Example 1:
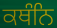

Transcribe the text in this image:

ਕਥੰਨਿ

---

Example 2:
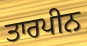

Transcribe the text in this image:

ਤਾਰਪੀਨ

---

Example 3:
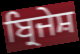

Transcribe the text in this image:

ਬ੍ਰਿਜੇਸ਼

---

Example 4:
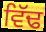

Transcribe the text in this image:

ਵਿੱਢ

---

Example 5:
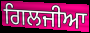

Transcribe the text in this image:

ਗਿਲਜੀਆ